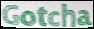
Gotcha